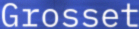
Grosset